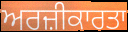
ਅਰਜ਼ੀਕਾਰਤਾ